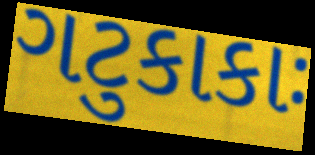
ગટુકાકાઃ